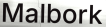
Malbork